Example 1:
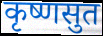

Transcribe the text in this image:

कृष्णसुत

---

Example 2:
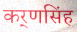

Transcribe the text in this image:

कर्णसिंह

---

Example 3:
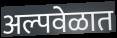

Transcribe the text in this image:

अल्पवेळात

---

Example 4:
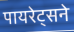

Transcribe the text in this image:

पायरेट्सने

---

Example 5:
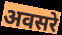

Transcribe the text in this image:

अवसरे